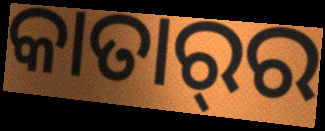
କାତାର୍‌ର